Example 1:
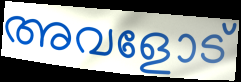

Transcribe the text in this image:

അവളോട്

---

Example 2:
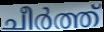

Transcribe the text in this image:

ചീർത്ത്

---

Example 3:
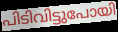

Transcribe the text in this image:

പിടിവിട്ടുപോയി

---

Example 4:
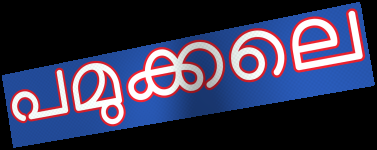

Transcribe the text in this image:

പമുക്കലെ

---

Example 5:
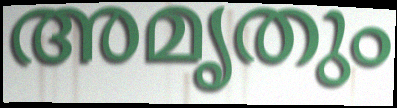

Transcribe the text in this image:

അമൃതും